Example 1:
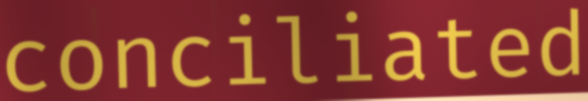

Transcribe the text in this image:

conciliated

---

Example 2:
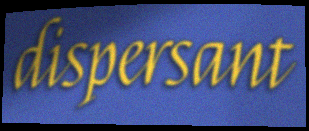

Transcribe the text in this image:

dispersant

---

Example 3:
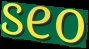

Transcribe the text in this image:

seo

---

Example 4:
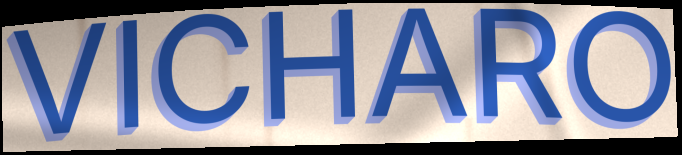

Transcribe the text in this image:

VICHARO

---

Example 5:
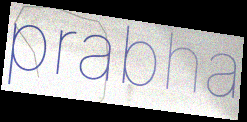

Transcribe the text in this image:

prabha